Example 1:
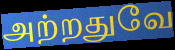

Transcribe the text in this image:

அற்றதுவே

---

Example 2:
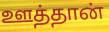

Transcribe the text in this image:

ஊத்தான்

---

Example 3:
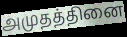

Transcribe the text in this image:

அமுதத்தினை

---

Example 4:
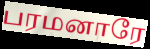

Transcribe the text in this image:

பரமனாரே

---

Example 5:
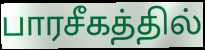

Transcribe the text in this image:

பாரசீகத்தில்